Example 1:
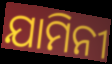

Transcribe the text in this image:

ଯାମିନୀ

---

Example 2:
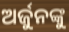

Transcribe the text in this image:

ଅର୍ଜୁନଙ୍କୁ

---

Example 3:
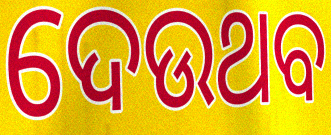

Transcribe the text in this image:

ଦେଉଥବ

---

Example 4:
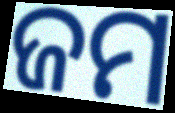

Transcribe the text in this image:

ଜମ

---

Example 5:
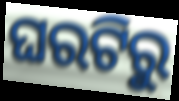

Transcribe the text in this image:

ଘରଟିରୁ